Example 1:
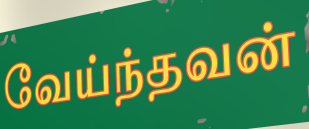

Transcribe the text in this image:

வேய்ந்தவன்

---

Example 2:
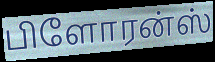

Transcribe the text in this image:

பிளோரன்ஸ்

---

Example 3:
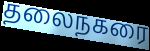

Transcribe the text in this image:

தலைநகரை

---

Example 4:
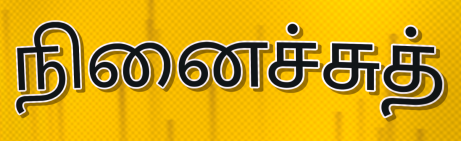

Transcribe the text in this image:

நினைச்சுத்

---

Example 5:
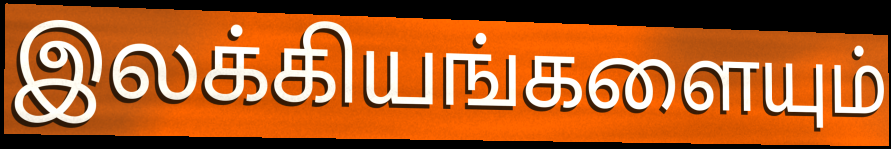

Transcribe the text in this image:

இலக்கியங்களையும்